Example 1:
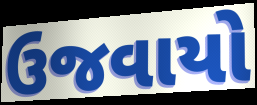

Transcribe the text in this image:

ઉજવાયો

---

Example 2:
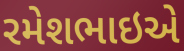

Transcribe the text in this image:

રમેશભાઇએ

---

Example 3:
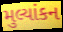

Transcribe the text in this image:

મુલ્યાંકન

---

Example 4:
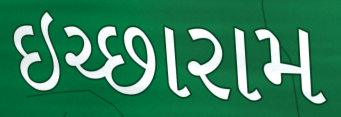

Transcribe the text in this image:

ઇચ્છારામ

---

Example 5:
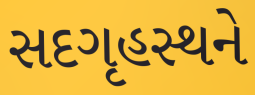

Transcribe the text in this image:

સદગૃહસ્થને